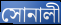
সোনালী